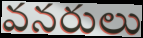
వనరులు